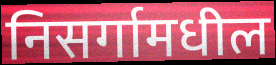
निसर्गामधील